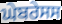
ਘੇਬਰੇਸਸ